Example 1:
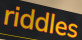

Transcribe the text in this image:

riddles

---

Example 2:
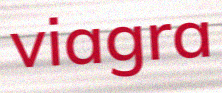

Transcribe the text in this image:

viagra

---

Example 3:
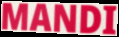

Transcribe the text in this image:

MANDI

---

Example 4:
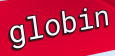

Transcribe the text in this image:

globin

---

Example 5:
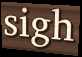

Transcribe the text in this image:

sigh